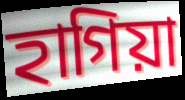
হাগিয়া